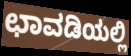
ಛಾವಡಿಯಲ್ಲಿ